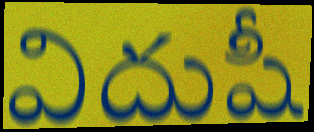
విదుషీ